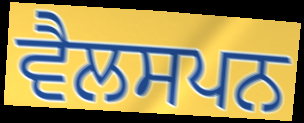
ਵੈਲਸਪਨ